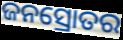
ଜନସ୍ରୋତର